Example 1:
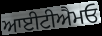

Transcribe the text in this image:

ਆਈਟੀਐਮਓ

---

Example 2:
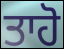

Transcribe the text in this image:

ਤਾਹੋ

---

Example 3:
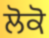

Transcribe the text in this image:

ਲੋਕੋ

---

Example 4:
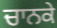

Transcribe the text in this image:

ਚਾਨਕੇ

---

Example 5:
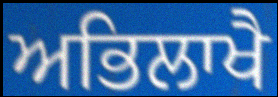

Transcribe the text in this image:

ਅਭਿਲਾਖੈ